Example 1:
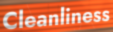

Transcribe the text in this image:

Cleanliness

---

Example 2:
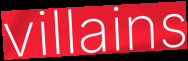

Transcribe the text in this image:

villains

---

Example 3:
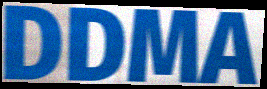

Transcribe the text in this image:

DDMA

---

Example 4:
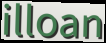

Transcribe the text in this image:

illoan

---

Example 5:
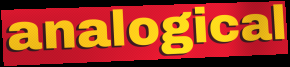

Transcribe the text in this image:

analogical